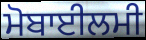
ਮੋਬਾਈਲਮੀ